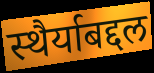
स्थैर्याबद्दल